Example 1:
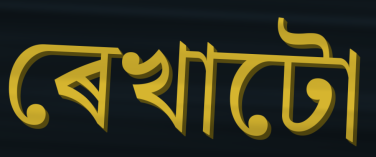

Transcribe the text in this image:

ৰেখাটো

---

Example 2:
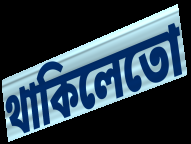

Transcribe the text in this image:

থাকিলেতো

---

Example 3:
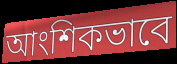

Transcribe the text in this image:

আংশিকভাবে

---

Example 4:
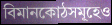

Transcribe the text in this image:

বিমানকোঠসমূহেও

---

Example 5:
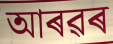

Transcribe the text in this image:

আৰৱৰ